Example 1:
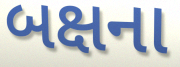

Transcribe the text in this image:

બક્ષના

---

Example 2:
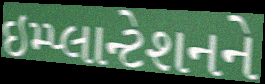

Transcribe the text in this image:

ઇમ્પ્લાન્ટેશનને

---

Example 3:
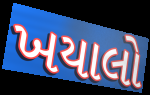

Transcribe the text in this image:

ખયાલો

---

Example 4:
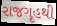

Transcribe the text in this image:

રાજગૃહથી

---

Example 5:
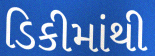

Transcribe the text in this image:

ડિકીમાંથી